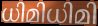
ധിമിധിമി